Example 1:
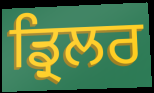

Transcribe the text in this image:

ਡ੍ਰਿਲਰ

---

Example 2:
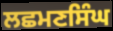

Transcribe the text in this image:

ਲਛਮਣਸਿੰਘ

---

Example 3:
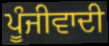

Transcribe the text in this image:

ਪੂੰਜੀਵਾਦੀ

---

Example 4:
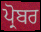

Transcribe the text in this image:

ਪ੍ਰੋਬਰ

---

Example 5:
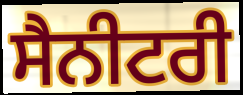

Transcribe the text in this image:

ਸੈਨੀਟਰੀ